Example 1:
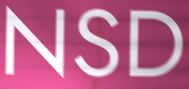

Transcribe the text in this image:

NSD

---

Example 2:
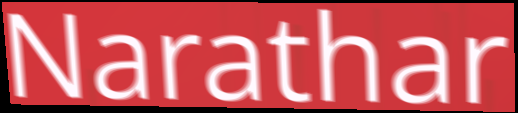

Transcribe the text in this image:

Narathar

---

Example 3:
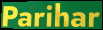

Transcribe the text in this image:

Parihar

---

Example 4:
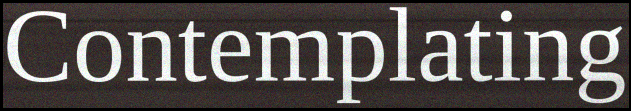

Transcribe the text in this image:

Contemplating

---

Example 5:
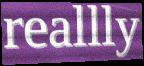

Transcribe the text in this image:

reallly